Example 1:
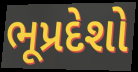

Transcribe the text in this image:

ભૂપ્રદેશો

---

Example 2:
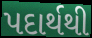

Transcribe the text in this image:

પદાર્થથી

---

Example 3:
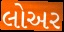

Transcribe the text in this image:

લોઅર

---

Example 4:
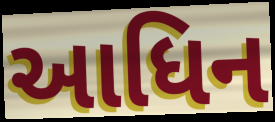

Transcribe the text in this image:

આધિન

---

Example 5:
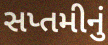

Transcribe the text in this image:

સપ્તમીનું